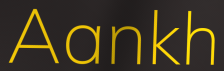
Aankh